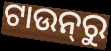
ଟାଉନ୍‌ରୁ